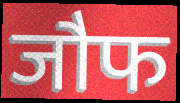
जौफ